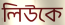
লিউকে